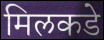
मिलकडे